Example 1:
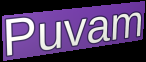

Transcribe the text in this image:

Puvam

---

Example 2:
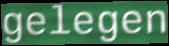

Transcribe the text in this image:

gelegen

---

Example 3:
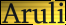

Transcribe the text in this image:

Aruli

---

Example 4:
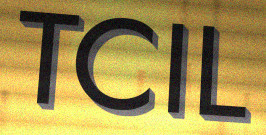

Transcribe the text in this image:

TCIL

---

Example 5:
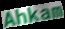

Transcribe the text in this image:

Ahkam